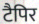
टैपिर